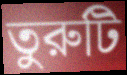
তুরুটি